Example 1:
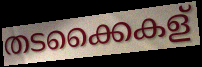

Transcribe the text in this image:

തടക്കൈകള്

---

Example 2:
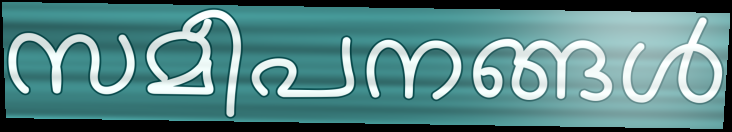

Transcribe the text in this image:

സമീപനങ്ങൾ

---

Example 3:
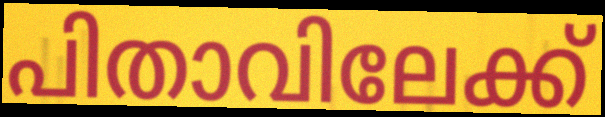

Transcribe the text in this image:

പിതാവിലേക്ക്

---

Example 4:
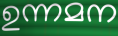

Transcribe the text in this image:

ഉന്നമന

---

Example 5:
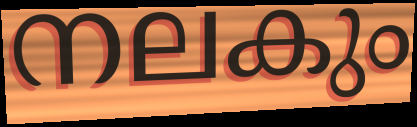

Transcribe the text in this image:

നലകും